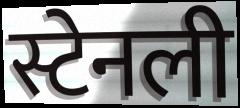
स्टेनली